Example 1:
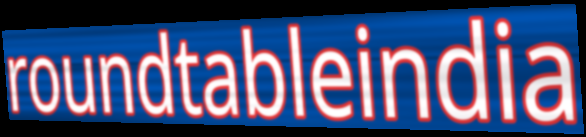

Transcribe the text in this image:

roundtableindia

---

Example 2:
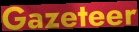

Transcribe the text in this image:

Gazeteer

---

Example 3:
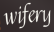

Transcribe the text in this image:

wifery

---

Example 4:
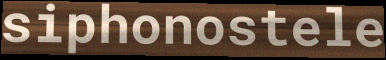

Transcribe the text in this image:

siphonostele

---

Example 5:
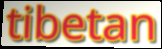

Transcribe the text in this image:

tibetan